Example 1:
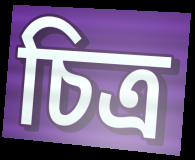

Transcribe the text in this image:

চিত্র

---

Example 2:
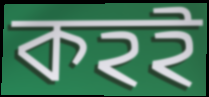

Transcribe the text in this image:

কহই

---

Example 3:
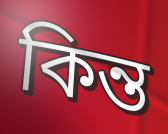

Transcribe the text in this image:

কিন্ত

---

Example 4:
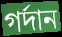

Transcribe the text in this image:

গর্দান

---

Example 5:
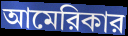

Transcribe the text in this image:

আমেরিকার